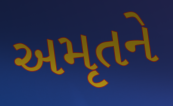
અમૃતને